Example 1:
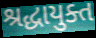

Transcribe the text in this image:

શ્રદ્ધાયુક્ત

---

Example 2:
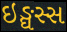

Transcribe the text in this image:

ઇઙ્ઘસ્સ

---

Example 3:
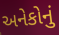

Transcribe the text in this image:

અનેકોનું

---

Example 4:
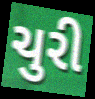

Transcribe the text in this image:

ચુરી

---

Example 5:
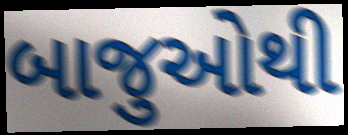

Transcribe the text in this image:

બાજુઓથી